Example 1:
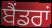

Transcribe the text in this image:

ਬੈਂਡਰਾਂ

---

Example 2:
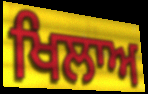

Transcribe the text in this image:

ਖਿਲਾਅ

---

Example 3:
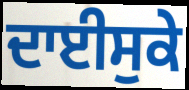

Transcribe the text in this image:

ਦਾਈਸੁਕੇ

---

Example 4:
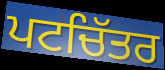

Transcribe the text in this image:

ਪਟਚਿੱਤਰ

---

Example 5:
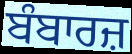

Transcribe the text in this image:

ਬੰਬਾਰਜ਼